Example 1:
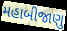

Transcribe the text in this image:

મહાબીજાણુ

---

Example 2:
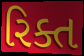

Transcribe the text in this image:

રિક્ત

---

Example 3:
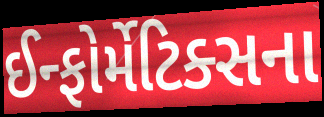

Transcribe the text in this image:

ઈન્ફોર્મેટિક્સના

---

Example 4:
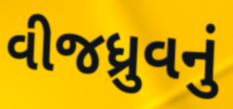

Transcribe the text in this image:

વીજધ્રુવનું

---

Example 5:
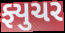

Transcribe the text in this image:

ફ્યુચર